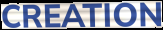
CREATION